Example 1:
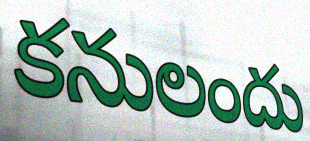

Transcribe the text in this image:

కనులందు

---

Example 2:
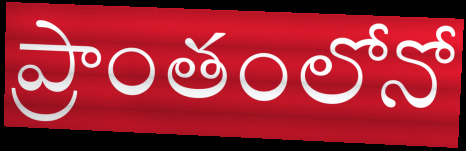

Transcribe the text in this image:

ప్రాంతంలోనో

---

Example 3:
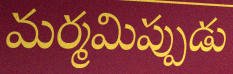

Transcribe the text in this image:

మర్మమిప్పుడు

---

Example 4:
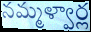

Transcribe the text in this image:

నమ్మళ్వార్ల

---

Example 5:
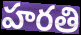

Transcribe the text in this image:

హరతి